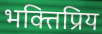
भक्तिप्रिय